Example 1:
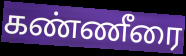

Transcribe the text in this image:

கண்ணீரை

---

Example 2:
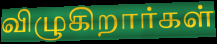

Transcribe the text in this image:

விழுகிறார்கள்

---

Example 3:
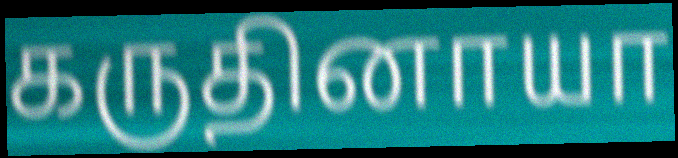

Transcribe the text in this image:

கருதினாயா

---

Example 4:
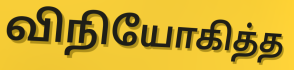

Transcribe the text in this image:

விநியோகித்த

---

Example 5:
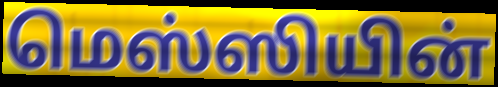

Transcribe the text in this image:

மெஸ்ஸியின்